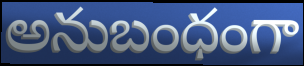
అనుబంధంగా